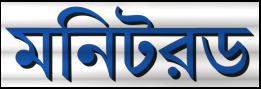
মনিটরড